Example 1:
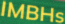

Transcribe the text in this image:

IMBHs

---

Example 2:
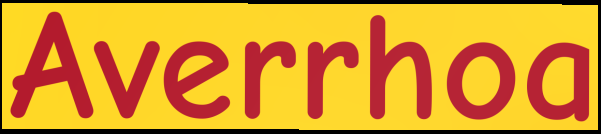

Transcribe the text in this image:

Averrhoa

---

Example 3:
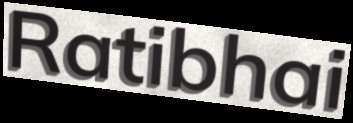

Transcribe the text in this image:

Ratibhai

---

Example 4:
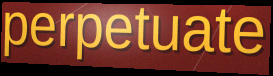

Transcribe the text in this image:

perpetuate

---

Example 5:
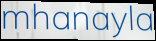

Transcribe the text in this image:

mhanayla